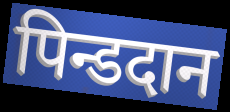
पिन्डदान